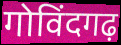
गोविंदगढ़